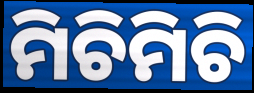
ମିଚିମିଚି